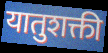
यातुशक्ती